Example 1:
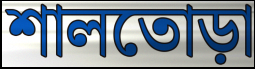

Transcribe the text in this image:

শালতোড়া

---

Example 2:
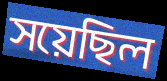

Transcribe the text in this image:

সয়েছিল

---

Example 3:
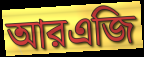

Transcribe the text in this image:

আরএজি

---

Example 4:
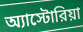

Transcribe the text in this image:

অ্যাস্টোরিয়া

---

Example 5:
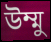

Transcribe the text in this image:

উম্মু